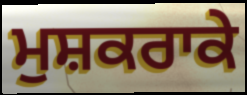
ਮੁਸ਼ਕਰਾਕੇ